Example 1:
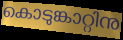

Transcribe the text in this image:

കൊടുങ്കാറ്റിനു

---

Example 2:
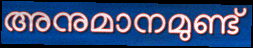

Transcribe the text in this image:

അനുമാനമുണ്ട്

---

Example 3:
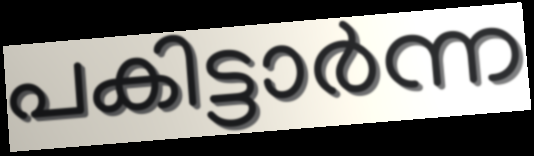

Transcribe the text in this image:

പകിട്ടാർന്ന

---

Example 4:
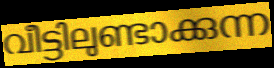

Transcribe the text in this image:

വീട്ടിലുണ്ടാക്കുന്ന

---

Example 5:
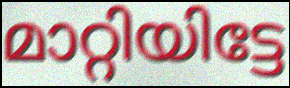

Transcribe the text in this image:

മാറ്റിയിട്ടേ